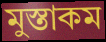
মুস্তাকম